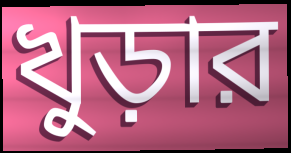
খুড়ার